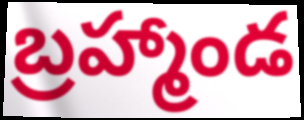
బ్రహ్మాండ